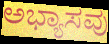
ಅಭ್ಯಾಸವು